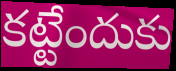
కట్టేందుకు